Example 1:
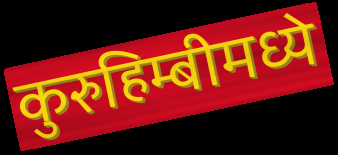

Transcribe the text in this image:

कुरुहिम्बीमध्ये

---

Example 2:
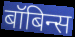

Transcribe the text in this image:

बॉबिन्स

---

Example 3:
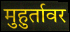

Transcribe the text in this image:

मुहुर्तावर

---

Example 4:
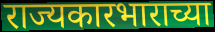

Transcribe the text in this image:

राज्यकारभाराच्या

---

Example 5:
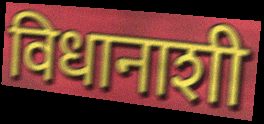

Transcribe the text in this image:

विधानाशी